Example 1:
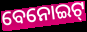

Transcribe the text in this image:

ବେନୋଇଟ୍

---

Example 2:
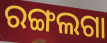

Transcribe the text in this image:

ରଙ୍ଗଲଗା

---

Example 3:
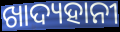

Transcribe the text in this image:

ଖାଦ୍ୟହାନୀ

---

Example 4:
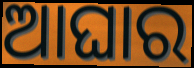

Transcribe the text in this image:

ଆଘାର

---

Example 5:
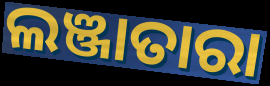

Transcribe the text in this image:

ଲଞ୍ଜାତାରା